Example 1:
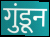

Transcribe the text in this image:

गुंडून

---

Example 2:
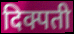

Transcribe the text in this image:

दिक्पती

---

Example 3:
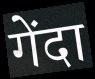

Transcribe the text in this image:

गेंदा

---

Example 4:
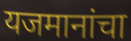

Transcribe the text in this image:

यजमानांचा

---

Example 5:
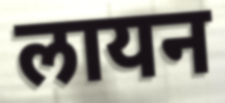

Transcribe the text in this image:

लायन